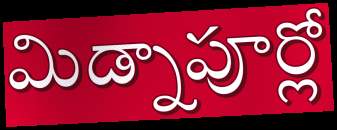
మిడ్నాపూర్లో